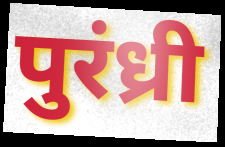
पुरंध्री